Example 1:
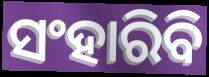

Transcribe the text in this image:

ସଂହାରିବି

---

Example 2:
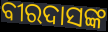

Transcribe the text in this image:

ବୀରଦାସଙ୍କ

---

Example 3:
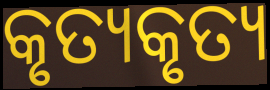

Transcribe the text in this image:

କୃତ୍ଯକୃତ୍ଯ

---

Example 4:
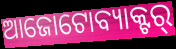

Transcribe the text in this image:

ଆଜୋଟୋବ୍ଯାକ୍ଟର୍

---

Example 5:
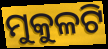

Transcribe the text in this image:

ମୁକୁଳଟି